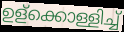
ഉള്ക്കൊള്ളിച്ച്